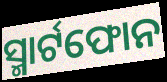
ସ୍ମାର୍ଟଫୋନ